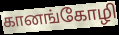
கானங்கோழி